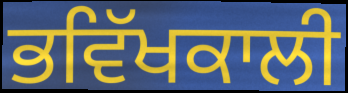
ਭਵਿੱਖਕਾਲੀ